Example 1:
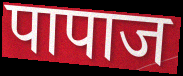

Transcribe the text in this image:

पापाज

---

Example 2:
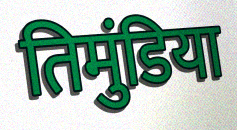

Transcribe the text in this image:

तिमुंडिया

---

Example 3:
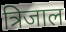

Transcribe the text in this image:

त्रिजाल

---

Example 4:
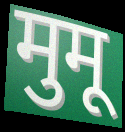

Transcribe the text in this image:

मुमू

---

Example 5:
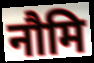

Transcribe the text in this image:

नौमि